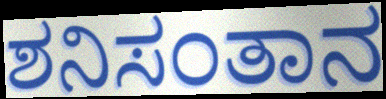
ಶನಿಸಂತಾನ